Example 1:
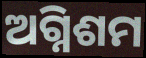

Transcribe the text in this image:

ଅଗ୍ନିଶମ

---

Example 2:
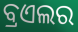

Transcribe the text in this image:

ବ୍ରଏଲର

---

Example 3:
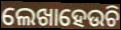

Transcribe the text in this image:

ଲେଖାହେଉଚି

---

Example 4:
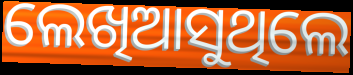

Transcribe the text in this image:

ଲେଖିଆସୁଥିଲେ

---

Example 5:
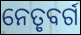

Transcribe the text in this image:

ନେତୃବର୍ଗ